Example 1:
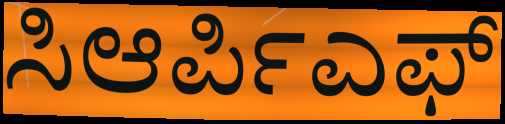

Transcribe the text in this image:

ಸಿಆರ್ಪಿಎಫ್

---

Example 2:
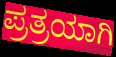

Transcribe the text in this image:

ಪ್ರತ್ರಯಾಗಿ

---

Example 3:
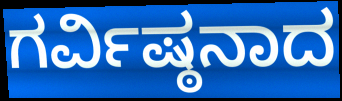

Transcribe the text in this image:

ಗರ್ವಿಷ್ಠನಾದ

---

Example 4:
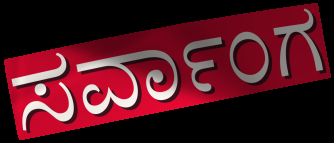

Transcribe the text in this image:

ಸರ್ವಾಂಗ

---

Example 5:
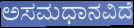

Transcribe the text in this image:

ಅಸಮಧಾನವಿದೆ